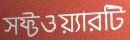
সফ্টওয়্যারটি